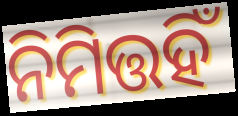
ନିମିତ୍ତହିଁ